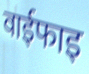
वाईफाइ